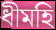
ধীমহি